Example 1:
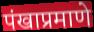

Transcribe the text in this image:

पंखाप्रमाणे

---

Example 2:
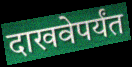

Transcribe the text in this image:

दाखवेपर्यंत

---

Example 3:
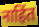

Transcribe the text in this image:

नाहिंत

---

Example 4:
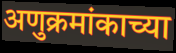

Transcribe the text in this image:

अणुक्रमांकाच्या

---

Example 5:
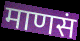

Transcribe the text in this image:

माणसं